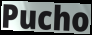
Pucho